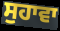
ਸੁਹਾਵਾ